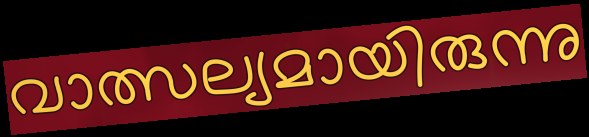
വാത്സല്യമായിരുന്നു